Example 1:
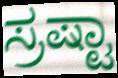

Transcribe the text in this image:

ಸ್ರಷ್ಟಾ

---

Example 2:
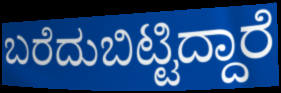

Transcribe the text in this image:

ಬರೆದುಬಿಟ್ಟಿದ್ದಾರೆ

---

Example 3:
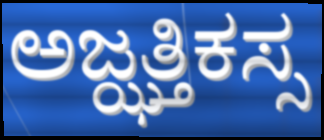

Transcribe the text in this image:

ಅಜ್ಝತ್ತಿಕಸ್ಸ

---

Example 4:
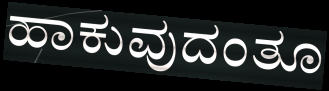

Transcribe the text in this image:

ಹಾಕುವುದಂತೂ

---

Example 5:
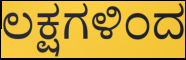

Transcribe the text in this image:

ಲಕ್ಷಗಳಿಂದ